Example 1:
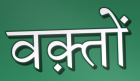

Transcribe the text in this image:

वक़्तों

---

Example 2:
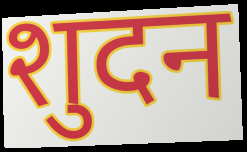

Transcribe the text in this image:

शुदन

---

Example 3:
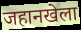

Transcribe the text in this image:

जहानखेला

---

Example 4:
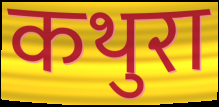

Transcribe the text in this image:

कथुरा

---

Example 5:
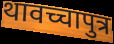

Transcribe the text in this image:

थावच्चापुत्र